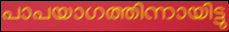
പാപയാഗത്തിന്നായിട്ടു